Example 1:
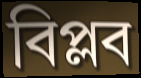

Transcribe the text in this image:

বিপ্লব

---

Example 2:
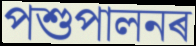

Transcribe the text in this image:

পশুপালনৰ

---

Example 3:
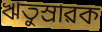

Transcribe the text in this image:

ঋতুস্ৰাৱক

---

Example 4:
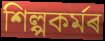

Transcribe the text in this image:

শিল্পকৰ্মৰ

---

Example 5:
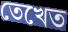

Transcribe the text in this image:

তেখেত